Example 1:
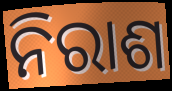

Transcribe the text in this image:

ନିରାଶ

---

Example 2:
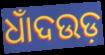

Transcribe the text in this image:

ଧାଁଦଉଡ଼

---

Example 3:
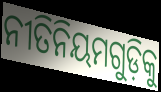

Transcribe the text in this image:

ନୀତିନିୟମଗୁଡ଼ିକୁ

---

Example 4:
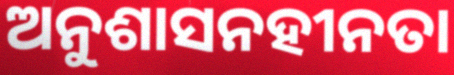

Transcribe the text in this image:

ଅନୁଶାସନହୀନତା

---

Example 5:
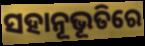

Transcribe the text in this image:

ସହାନୂଭୂତିରେ